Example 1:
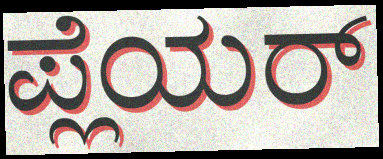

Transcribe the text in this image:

ಪ್ಲೆಯರ್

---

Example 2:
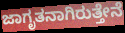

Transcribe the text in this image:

ಜಾಗೃತನಾಗಿರುತ್ತೇನೆ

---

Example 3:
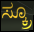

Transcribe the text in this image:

ಸ್ಕ್ರೂ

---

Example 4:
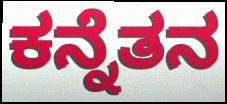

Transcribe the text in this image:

ಕನ್ನೆತನ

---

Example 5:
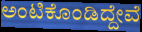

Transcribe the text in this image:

ಅಂಟಿಕೊಂಡಿದ್ದೇವೆ